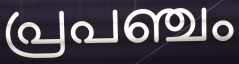
പ്രപഞ്ചം